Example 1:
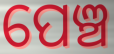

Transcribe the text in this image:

ପେଞ୍ଚ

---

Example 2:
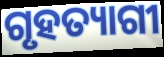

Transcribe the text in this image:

ଗୃହତ୍ୟାଗୀ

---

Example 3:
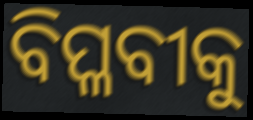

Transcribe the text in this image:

ବିପ୍ଳବୀକୁ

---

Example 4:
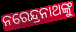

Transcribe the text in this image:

ନରେନ୍ଦ୍ରନାଥଙ୍କୁ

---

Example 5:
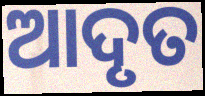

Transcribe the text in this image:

ଆଦୃତ